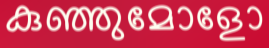
കുഞ്ഞുമോളോ